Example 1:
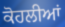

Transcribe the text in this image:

ਕੋਹਲੀਆਂ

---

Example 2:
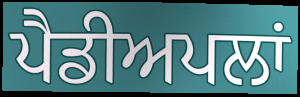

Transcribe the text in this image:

ਪੈਡੀਅਪਲਾਂ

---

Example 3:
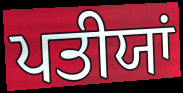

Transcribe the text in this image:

ਪਤੀਯਾਂ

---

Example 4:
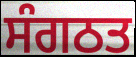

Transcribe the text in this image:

ਸੰਗਠਤ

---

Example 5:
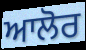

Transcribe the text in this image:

ਆਲੋਰ